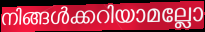
നിങ്ങൾക്കറിയാമല്ലോ